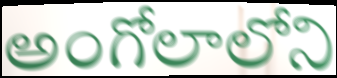
అంగోలాలోని